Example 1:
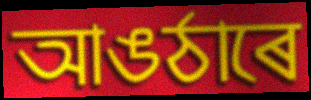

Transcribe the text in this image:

আঙঠাৰে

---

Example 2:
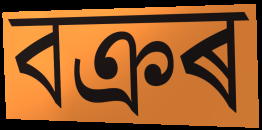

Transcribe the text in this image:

বক্ৰৰ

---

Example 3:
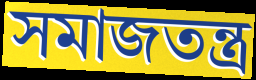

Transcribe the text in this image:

সমাজতন্ত্ৰ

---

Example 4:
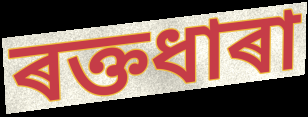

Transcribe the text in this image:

ৰক্তধাৰা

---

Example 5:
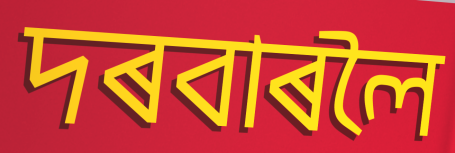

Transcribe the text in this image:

দৰবাৰলৈ